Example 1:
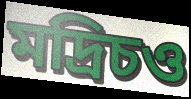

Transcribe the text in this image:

মদ্রিচও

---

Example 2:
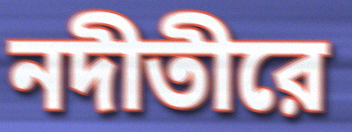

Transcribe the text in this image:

নদীতীরে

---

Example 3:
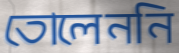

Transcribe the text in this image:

তোলেননি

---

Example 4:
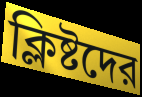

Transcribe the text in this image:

ক্লিষ্টদের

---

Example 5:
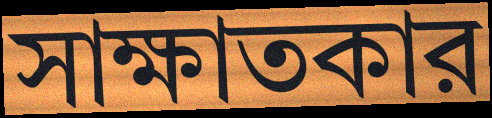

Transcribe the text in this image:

সাক্ষাতকার